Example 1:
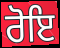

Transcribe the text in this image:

ਰੋਇ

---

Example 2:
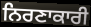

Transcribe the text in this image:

ਨਿਰਣਾਕਾਰੀ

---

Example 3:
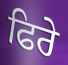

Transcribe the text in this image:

ਫਿਰੇ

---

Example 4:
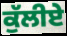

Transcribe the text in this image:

ਕੁੱਲੀਏ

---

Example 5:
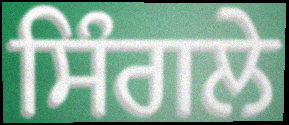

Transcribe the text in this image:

ਸਿੰਗਲੇ